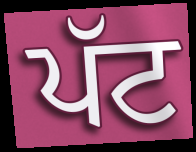
ਪੱਟ